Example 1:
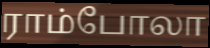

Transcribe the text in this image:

ராம்போலா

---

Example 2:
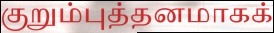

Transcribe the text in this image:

குறும்புத்தனமாகக்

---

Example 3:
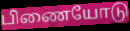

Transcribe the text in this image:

பிணையோடு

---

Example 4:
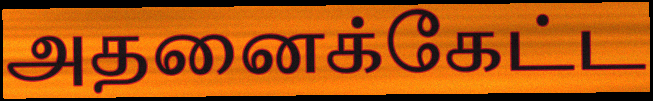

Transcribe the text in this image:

அதனைக்கேட்ட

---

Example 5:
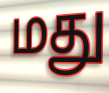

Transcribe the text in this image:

மது